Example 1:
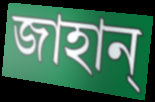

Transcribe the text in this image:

জাহান্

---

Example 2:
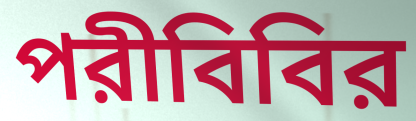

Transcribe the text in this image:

পরীবিবির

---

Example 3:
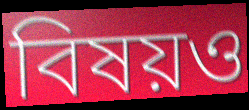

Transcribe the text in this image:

বিষয়ও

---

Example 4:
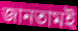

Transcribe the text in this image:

জানতামই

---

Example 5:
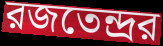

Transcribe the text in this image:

রজতেন্দ্রর